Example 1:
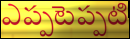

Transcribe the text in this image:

ఎప్పటెప్పటి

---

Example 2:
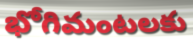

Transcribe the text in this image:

భోగిమంటలకు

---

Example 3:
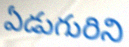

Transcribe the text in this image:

ఏడుగురిని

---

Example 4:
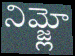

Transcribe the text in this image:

నిమ్జ్లో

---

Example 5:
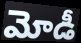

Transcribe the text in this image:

మోడీ